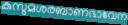
കുസുമശരബാണഭാവേന